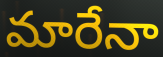
మారేనా